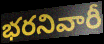
భరనివారీ